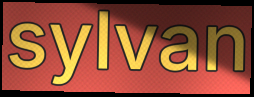
sylvan